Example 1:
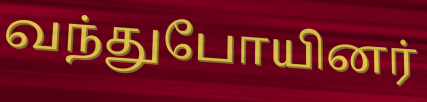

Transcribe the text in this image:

வந்துபோயினர்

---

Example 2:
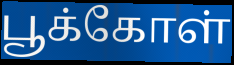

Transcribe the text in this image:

பூக்கோள்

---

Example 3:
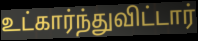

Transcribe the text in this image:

உட்கார்ந்துவிட்டார்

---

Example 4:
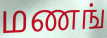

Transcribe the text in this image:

மணங்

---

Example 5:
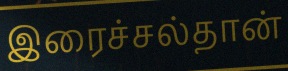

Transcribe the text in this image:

இரைச்சல்தான்